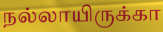
நல்லாயிருக்கா